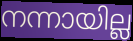
നന്നായില്ല